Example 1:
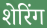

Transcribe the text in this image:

शेरिंग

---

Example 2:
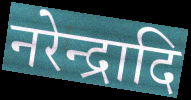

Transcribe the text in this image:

नरेन्द्रादि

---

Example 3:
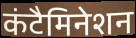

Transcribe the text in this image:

कंटैमिनेशन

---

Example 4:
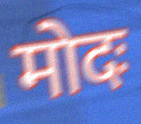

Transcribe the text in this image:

मोदः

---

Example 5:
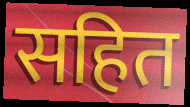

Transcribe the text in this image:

सहित